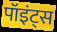
पॉइंट्स